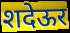
शदेऊर